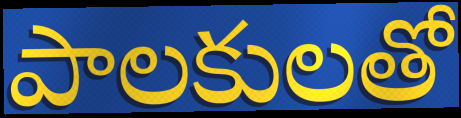
పాలకులతో